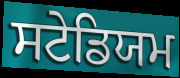
ਸਟੇਡਿਯਮ